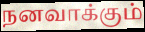
நனவாக்கும்